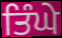
ਤਿੰਘੇ